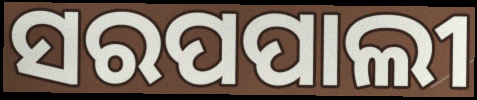
ସରପପାଲୀ